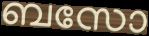
ബസോ